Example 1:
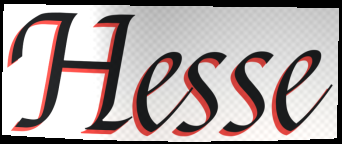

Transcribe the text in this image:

Hesse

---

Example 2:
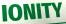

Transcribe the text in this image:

IONITY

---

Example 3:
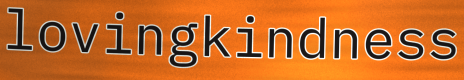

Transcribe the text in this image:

lovingkindness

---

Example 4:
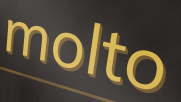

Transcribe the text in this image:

molto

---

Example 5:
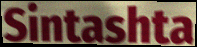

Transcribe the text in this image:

Sintashta